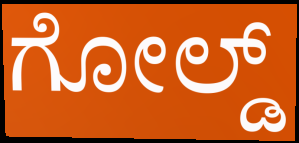
ಗೋಲ್ಡ್